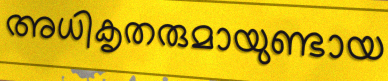
അധികൃതരുമായുണ്ടായ